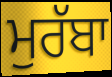
ਮੁਰੱਬਾ